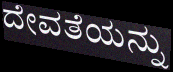
ದೇವತೆಯನ್ನು